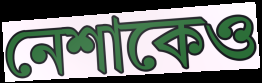
নেশাকেও